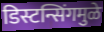
डिस्टन्सिंगमुळे